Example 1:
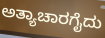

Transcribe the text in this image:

ಅತ್ಯಾಚಾರಗೈದು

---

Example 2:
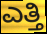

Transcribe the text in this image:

ಎತ್ತಿ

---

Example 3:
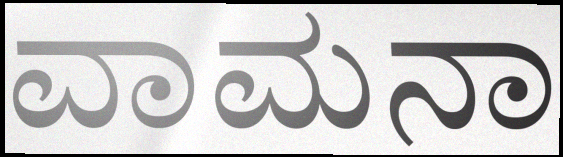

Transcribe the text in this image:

ವಾಮನಾ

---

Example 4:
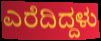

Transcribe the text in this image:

ಎರೆದಿದ್ದಳು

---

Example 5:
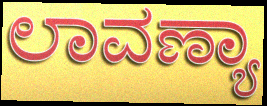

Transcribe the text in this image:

ಲಾವಣ್ಯಾ